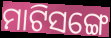
ମାଟିସଙ୍ଗେ